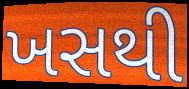
ખસથી